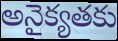
అనైక్యతకు